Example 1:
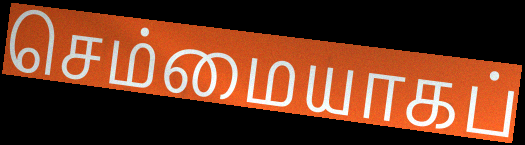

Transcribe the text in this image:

செம்மையாகப்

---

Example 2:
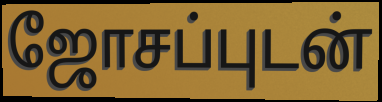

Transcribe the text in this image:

ஜோசப்புடன்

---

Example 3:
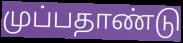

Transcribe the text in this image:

முப்பதாண்டு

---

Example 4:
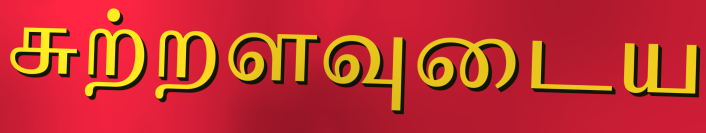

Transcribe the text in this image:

சுற்றளவுடைய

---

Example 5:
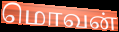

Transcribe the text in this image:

மொவன்